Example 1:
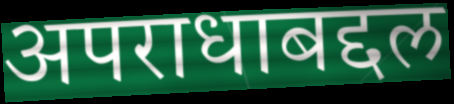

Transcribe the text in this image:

अपराधाबद्दल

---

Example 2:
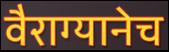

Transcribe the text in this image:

वैराग्यानेच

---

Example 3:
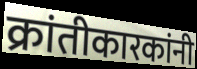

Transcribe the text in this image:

क्रांतीकारकांनी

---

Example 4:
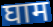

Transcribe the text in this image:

घाम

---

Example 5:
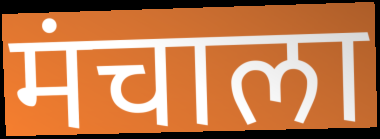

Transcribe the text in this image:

मंचाला